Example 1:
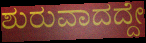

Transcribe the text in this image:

ಶುರುವಾದದ್ದೇ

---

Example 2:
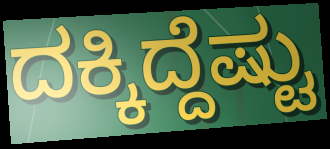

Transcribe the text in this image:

ದಕ್ಕಿದ್ದೆಷ್ಟು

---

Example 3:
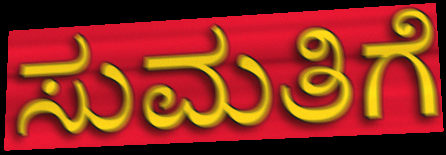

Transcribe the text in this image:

ಸುಮತಿಗೆ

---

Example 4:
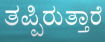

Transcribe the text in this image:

ತಪ್ಪಿರುತ್ತಾರೆ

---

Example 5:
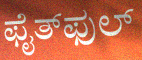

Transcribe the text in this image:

ಫೈತ್‌ಫುಲ್